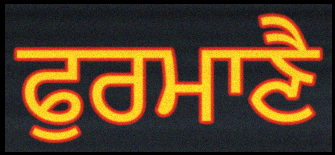
ਫੁਰਮਾਣੈ